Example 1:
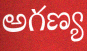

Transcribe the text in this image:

అగణ్య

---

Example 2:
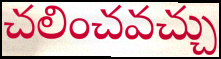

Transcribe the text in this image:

చలించవచ్చు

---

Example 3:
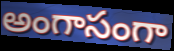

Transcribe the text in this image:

అంగాసంగా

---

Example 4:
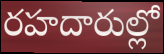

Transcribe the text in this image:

రహదారుల్లో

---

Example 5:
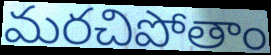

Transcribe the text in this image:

మరచిపోతాం